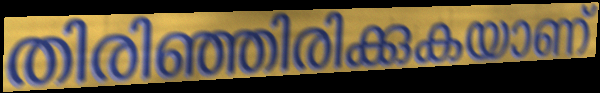
തിരിഞ്ഞിരിക്കുകയാണ്